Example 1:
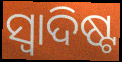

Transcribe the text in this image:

ସ୍ବାଦିଷ୍ଟ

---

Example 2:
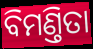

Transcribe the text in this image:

ବିମଣ୍ତିତା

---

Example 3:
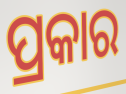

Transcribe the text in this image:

ପ୍ରକାର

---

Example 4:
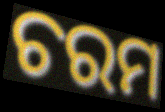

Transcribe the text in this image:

ଚରମ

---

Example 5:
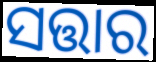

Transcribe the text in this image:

ସତ୍ତାର